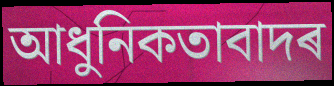
আধুনিকতাবাদৰ